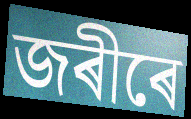
জৰীৰে